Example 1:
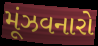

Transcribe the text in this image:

મૂંઝવનારો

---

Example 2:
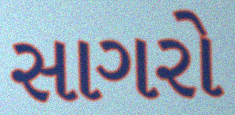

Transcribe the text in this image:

સાગરો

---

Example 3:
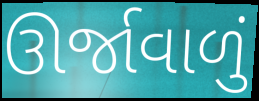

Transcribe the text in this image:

ઊર્જાવાળું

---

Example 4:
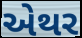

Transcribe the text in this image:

એથર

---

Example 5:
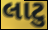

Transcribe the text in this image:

લાટુ